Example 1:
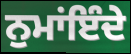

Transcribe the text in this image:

ਨੁਮਾਂਇੰਦੇ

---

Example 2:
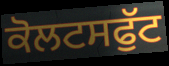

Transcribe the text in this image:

ਕੋਲਟਸਫੁੱਟ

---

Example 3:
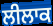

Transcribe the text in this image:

ਲੀਲਾਕ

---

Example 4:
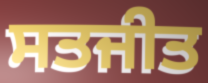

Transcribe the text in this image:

ਸਤਜੀਤ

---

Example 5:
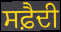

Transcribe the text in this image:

ਸਫ਼ੈਦੀ